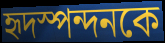
হৃদস্পন্দনকে